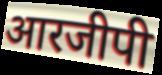
आरजीपी